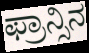
ಫ್ರಾನ್ಸಿನ